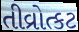
તીવ્રોત્કટ